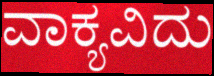
ವಾಕ್ಯವಿದು